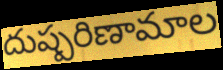
దుష్పరిణామాల